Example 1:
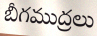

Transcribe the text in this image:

బీగముద్రలు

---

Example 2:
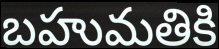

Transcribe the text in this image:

బహుమతికి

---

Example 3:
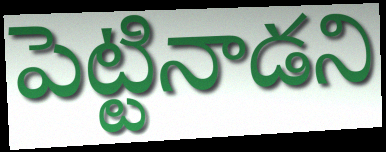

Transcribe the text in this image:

పెట్టినాడని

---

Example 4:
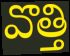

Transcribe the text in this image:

వొత్తి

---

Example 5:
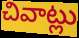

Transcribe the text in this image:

చివాట్లు